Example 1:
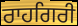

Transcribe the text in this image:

ਰਾਹਗਿਰੀ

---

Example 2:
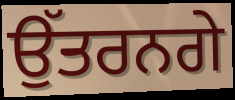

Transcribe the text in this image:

ਉੱਤਰਨਗੇ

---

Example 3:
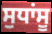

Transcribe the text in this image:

ਸੁਧਾਂਸੂ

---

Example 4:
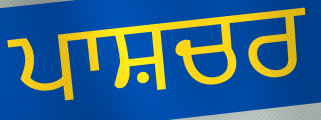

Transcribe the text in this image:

ਪਾਸ਼ਚਰ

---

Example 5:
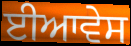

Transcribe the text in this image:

ਈਆਵੇਸ